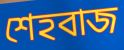
শেহবাজ